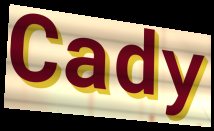
Cady